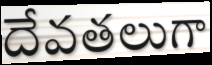
దేవతలుగా